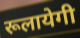
रूलायेगी